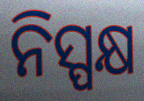
ନିସ୍ପକ୍ଷ